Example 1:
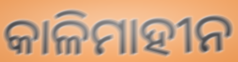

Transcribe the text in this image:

କାଳିମାହୀନ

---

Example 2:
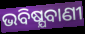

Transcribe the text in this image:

ଭବିଷ୍ଯବାଣୀ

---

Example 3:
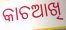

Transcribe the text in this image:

କାଚଆଖି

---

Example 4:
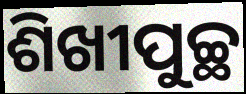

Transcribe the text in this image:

ଶିଖୀପୁଚ୍ଛ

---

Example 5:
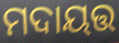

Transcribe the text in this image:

ମଦାୟତ୍ତ